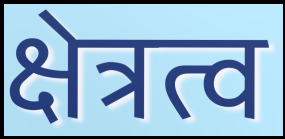
क्षेत्रत्व